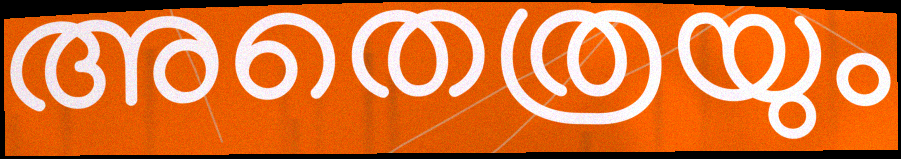
അതെത്രയും